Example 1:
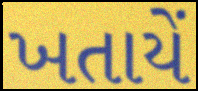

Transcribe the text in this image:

ખતાયેં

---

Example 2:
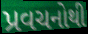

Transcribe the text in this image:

પ્રવચનોથી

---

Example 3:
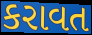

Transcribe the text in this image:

કરાવત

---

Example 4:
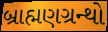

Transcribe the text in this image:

બ્રાહ્મણગ્રન્થો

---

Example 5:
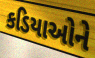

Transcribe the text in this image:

કડિયાઓને